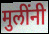
मुलींनी